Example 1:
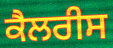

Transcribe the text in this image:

ਕੈਲਰੀਸ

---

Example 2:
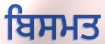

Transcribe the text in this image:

ਬਿਸਮਤ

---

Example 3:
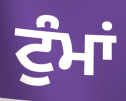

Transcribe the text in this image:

ਟੁੰਮਾਂ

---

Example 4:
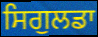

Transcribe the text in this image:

ਸਿਗੁਲਡਾ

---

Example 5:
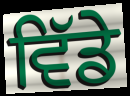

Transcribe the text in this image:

ਵਿੱਡੇ